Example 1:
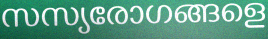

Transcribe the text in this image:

സസ്യരോഗങ്ങളെ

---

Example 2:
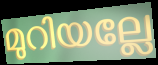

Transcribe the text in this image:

മുറിയല്ലേ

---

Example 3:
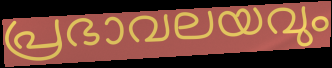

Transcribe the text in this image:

പ്രഭാവലയവും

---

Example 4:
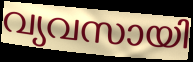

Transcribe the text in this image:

വ്യവസായി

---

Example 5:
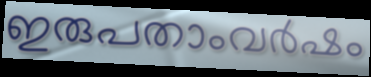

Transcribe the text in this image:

ഇരുപതാംവർഷം